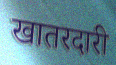
खातरदारी